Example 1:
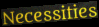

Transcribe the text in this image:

Necessities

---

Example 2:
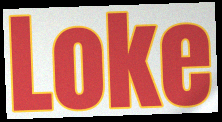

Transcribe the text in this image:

Loke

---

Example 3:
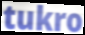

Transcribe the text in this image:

tukro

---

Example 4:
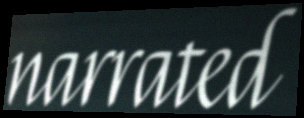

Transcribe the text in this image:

narrated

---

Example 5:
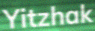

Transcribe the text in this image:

Yitzhak